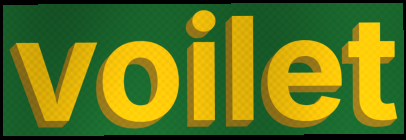
voilet